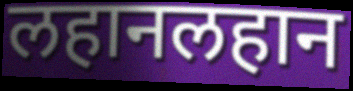
लहानलहान